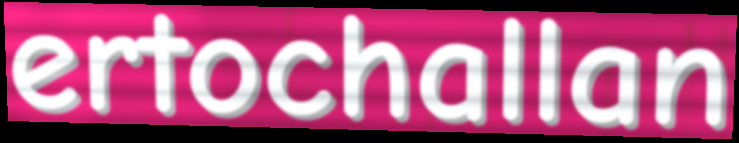
ertochallan